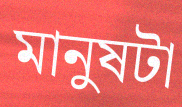
মানুষটা